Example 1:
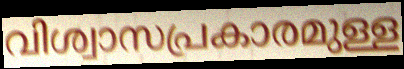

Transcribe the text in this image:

വിശ്വാസപ്രകാരമുള്ള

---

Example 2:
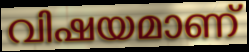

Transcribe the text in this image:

വിഷയമാണ്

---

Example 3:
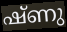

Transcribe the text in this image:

ഷ്ണു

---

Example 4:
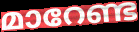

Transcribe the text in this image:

മാറേണ്ട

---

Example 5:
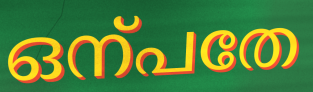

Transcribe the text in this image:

ഒന്പതേ